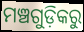
ମଞ୍ଚଗୁଡ଼ିକରୁ